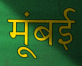
मूंबई